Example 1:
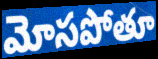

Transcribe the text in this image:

మోసపోతూ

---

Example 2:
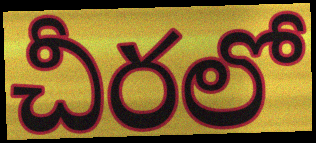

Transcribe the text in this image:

చీరలో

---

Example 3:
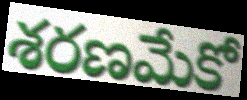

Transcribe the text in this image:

శరణమేకో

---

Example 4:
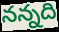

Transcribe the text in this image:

నన్నది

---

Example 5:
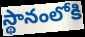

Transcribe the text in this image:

స్థానంలోకి